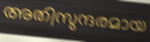
അതിസുന്ദരമായ